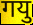
गयु